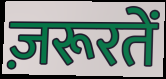
ज़रूरतें